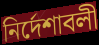
নির্দেশাবলী